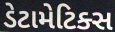
ડેટામેટિક્સ